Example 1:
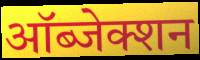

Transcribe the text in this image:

ऑब्जेक्शन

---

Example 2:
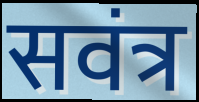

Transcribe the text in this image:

सवंत्र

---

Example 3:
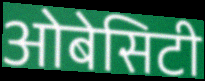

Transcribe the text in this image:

ओबेसिटी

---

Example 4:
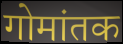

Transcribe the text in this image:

गोमांतक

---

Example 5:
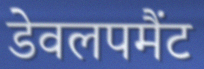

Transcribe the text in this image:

डेवलपमैंट